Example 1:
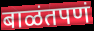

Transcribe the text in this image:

बाळंतपणं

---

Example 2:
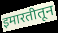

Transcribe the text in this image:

इमारतीतून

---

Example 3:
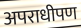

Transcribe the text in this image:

अपराधीपण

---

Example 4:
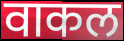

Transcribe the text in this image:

वाकल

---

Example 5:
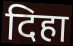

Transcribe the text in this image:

दिहा